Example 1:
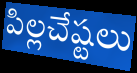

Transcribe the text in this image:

పిల్లచేష్టలు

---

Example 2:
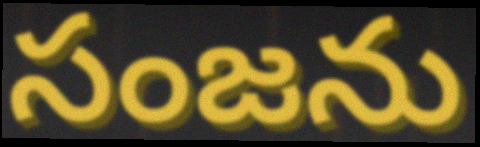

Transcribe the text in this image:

సంజను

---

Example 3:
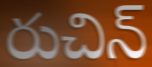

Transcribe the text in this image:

రుచిన్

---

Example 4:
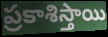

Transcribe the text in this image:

ప్రకాశిస్తాయి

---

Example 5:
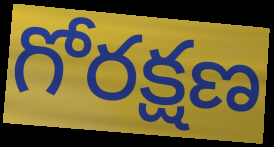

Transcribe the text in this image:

గోరక్షణ